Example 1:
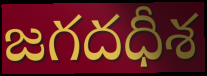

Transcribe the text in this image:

జగదధీశ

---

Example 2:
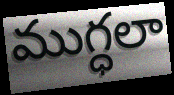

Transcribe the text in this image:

ముగ్ధలా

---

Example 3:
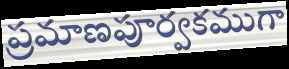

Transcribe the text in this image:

ప్రమాణపూర్వకముగా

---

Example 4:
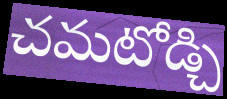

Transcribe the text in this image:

చమటోడ్చి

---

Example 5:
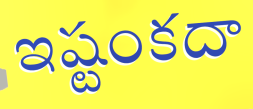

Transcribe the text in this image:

ఇష్టంకదా